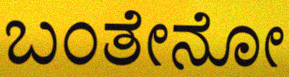
ಬಂತೇನೋ